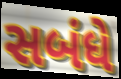
સબંધે